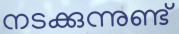
നടക്കുന്നുണ്ട്